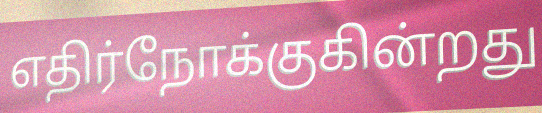
எதிர்நோக்குகின்றது